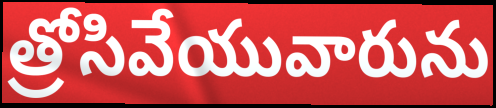
త్రోసివేయువారును